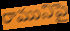
రామునిపై